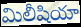
మిలీషియా